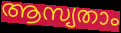
ആസ്യതാം